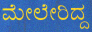
ಮೇಲೇರಿದ್ದ